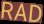
RAD